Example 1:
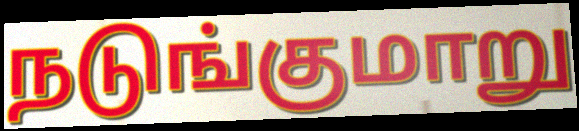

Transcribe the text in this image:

நடுங்குமாறு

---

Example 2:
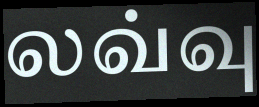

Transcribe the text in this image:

லவ்வு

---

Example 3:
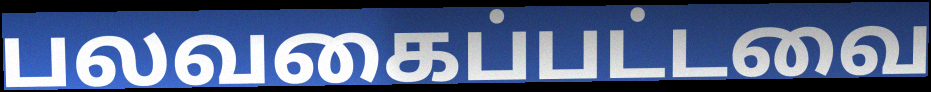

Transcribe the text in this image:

பலவகைப்பட்டவை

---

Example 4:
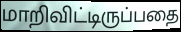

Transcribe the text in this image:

மாறிவிட்டிருப்பதை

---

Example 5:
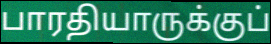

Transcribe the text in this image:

பாரதியாருக்குப்